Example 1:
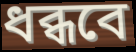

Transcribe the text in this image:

ধব্ধবে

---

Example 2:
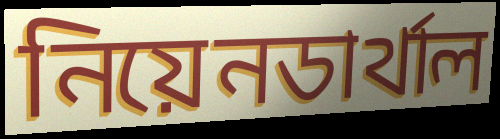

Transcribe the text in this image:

নিয়েনডার্থাল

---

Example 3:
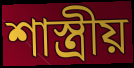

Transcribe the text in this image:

শাস্ত্রীয়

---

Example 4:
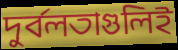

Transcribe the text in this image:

দুর্বলতাগুলিই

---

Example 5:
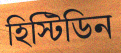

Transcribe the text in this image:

হিস্টিডিন